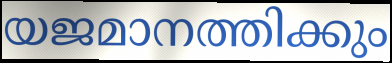
യജമാനത്തിക്കും